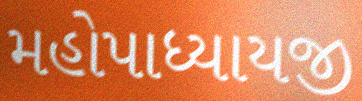
મહોપાધ્યાયજી